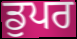
ਡੁਪਰ